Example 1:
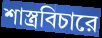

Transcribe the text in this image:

শাস্ত্রবিচারে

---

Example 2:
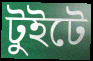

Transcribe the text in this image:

টুইটে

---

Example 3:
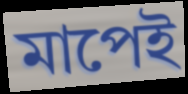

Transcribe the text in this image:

মাপেই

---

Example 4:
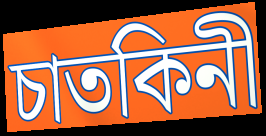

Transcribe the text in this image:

চাতকিনী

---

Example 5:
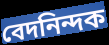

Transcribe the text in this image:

বেদনিন্দক